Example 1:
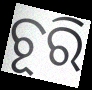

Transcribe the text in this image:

ଚୂରି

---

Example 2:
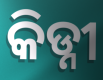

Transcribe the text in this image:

କିଡ୍ନୀ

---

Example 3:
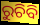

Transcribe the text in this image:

ରୁଚିବି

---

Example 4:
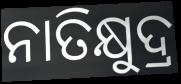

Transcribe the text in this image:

ନାତିକ୍ଷୁଦ୍ର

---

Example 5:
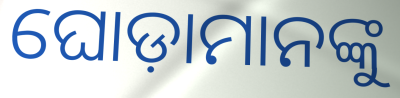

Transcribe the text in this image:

ଘୋଡ଼ାମାନଙ୍କୁ